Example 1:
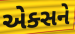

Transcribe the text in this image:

એક્સને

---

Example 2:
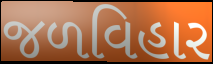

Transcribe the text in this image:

જળવિહાર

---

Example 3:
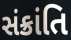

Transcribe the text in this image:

સંક્રાંતિ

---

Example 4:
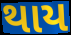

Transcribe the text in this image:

થાય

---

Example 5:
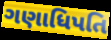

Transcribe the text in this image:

ગણાધિપતિ